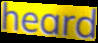
heard